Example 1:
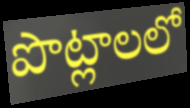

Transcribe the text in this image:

పొట్లాలలో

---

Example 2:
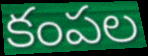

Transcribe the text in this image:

కంపల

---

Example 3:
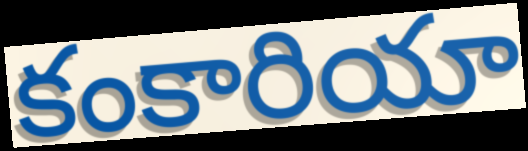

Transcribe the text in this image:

కంకారియా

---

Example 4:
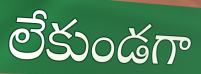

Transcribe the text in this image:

లేకుండగా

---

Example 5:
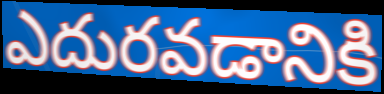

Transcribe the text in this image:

ఎదురవడానికి